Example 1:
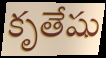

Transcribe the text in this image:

కృతేషు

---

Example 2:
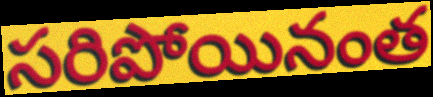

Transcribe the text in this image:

సరిపోయినంత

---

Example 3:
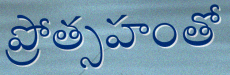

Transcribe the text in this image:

ప్రోత్సహంతో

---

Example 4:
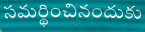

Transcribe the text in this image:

సమర్థించినందుకు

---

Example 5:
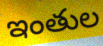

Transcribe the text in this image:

ఇంతుల